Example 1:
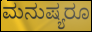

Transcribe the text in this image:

ಮನುಷ್ಯರೂ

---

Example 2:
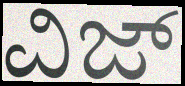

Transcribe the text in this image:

ವಿಜ್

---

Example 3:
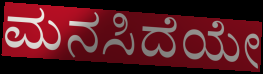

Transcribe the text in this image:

ಮನಸಿದೆಯೇ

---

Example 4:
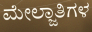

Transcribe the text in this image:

ಮೇಲ್ಜಾತಿಗಳ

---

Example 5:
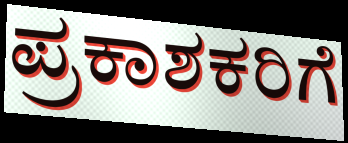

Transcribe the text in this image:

ಪ್ರಕಾಶಕರಿಗೆ